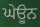
ਘੇਊਨ